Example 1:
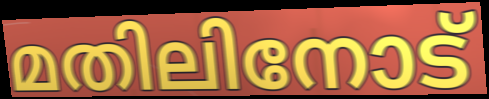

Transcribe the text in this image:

മതിലിനോട്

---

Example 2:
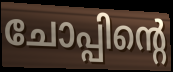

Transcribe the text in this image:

ചോപ്പിന്റെ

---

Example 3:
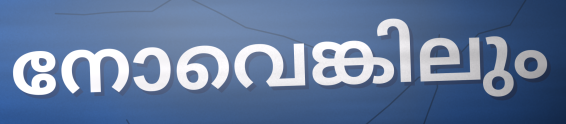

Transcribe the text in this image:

നോവെങ്കിലും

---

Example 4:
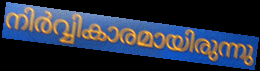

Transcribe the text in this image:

നിർവ്വികാരമായിരുന്നു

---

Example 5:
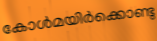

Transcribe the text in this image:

കോൾമയിർക്കൊണ്ടു